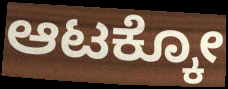
ಆಟಕ್ಕೋ